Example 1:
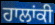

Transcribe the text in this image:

ਹਾਲਾਂਕੀ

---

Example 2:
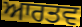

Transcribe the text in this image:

ਆਰਤਵ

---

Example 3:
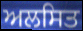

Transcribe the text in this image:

ਅਲਸਿਤ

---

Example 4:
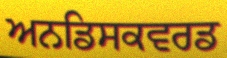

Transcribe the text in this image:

ਅਨਡਿਸਕਵਰਡ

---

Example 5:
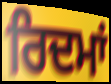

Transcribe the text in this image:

ਰਿਦਮਾਂ